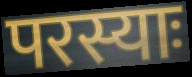
परस्याः